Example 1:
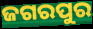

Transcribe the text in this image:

ଜଗରପୁର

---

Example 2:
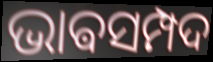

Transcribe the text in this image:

ଭାଵସମ୍ପଦ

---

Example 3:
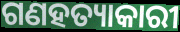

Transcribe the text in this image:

ଗଣହତ୍ୟାକାରୀ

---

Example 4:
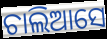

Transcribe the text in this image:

ଚାଲିଆସେ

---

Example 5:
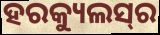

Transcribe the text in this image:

ହରକ୍ୟୁଲସ୍‍ର